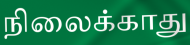
நிலைக்காது